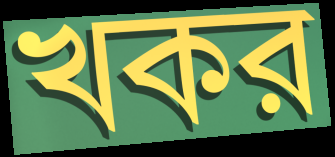
খকর